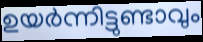
ഉയർന്നിട്ടുണ്ടാവും